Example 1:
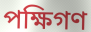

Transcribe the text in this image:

পক্ষিগণ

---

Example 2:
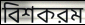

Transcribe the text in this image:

বিশকরম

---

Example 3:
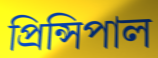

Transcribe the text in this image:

প্রিন্সিপাল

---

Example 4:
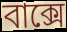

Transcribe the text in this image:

বাক্সে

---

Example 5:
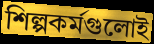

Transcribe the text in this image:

শিল্পকর্মগুলোই